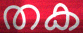
തക